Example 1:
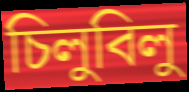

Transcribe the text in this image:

চিলুবিলু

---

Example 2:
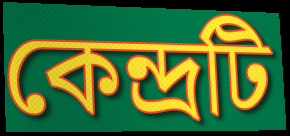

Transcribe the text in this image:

কেন্দ্রটি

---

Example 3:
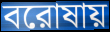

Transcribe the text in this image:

বরোষায়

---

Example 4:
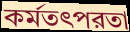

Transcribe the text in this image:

কর্মতৎপরতা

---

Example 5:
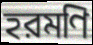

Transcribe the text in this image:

হরমণি